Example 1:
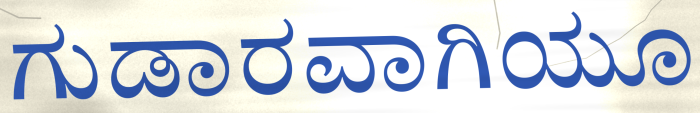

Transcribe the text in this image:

ಗುಡಾರವಾಗಿಯೂ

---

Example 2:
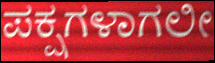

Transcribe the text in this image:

ಪಕ್ಷಗಳಾಗಲೀ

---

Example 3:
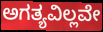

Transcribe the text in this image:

ಅಗತ್ಯವಿಲ್ಲವೇ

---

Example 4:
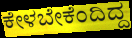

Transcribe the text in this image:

ಕೇಳಬೇಕೆಂದಿದ್ದ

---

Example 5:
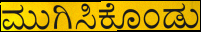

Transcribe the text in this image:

ಮುಗಿಸಿಕೊಂಡು